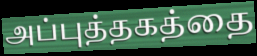
அப்புத்தகத்தை